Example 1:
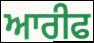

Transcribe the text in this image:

ਆਰੀਫ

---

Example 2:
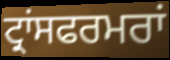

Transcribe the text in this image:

ਟ੍ਰਾਂਸਫਰਮਰਾਂ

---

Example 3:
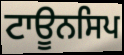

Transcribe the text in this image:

ਟਾਊਨਸਿਪ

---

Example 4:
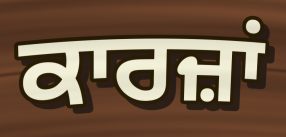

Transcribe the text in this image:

ਕਾਰਜ਼ਾਂ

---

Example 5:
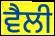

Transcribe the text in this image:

ਵੈਲੀ